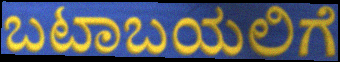
ಬಟಾಬಯಲಿಗೆ